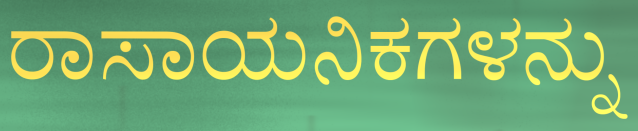
ರಾಸಾಯನಿಕಗಳನ್ನು